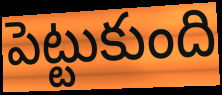
పెట్టుకుంది